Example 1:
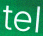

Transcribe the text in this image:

tel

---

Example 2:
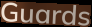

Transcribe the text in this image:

Guards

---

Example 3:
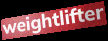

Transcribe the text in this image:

weightlifter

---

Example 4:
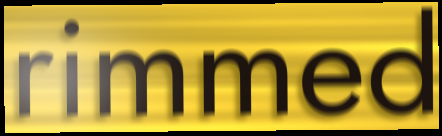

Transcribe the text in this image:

rimmed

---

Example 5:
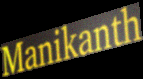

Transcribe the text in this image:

Manikanth